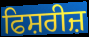
ਫਿਸ਼ਰੀਜ਼